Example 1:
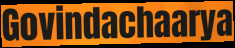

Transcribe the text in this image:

Govindachaarya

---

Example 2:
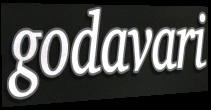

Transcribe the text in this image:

godavari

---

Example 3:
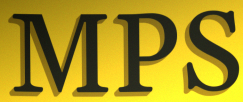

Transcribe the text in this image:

MPS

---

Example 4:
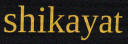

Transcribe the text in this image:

shikayat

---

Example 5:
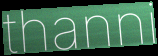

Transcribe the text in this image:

thanni